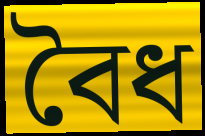
বৈধ